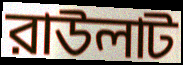
রাউলাট